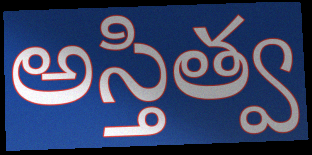
అస్తిత్వ